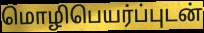
மொழிபெயர்ப்புடன்